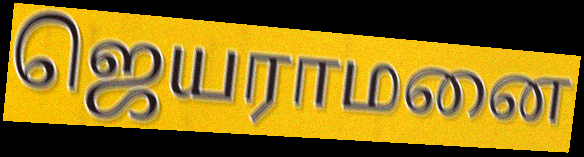
ஜெயராமனை